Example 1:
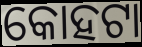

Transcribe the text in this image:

କୋହଟା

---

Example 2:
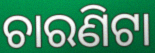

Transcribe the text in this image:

ଚାରଣିଟା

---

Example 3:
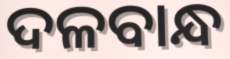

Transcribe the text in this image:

ଦଳବାନ୍ଧ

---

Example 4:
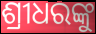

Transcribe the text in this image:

ଶ୍ରୀଧରଙ୍କୁ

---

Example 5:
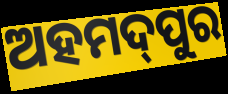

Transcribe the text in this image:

ଅହମଦ୍‌ପୁର